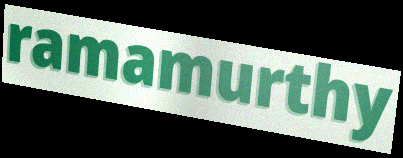
ramamurthy